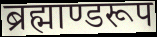
ब्रह्माण्डरूप